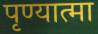
पृण्यात्मा